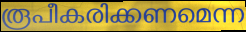
രൂപീകരിക്കണമെന്ന